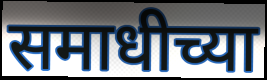
समाधीच्या